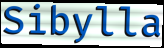
Sibylla